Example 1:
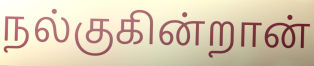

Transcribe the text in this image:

நல்குகின்றான்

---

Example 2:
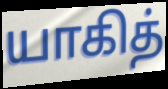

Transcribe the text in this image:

யாகித்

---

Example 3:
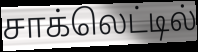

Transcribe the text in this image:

சாக்லெட்டில்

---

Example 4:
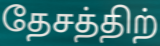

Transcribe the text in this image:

தேசத்திற்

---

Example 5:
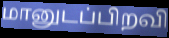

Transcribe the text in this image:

மானுடப்பிறவி